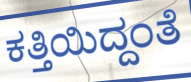
ಕತ್ತಿಯಿದ್ದಂತೆ